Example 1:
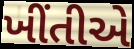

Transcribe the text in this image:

ખીંતીએ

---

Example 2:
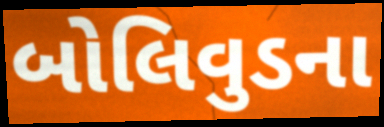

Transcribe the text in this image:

બોલિવુડના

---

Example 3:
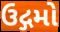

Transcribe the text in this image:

ઉદ્ગમો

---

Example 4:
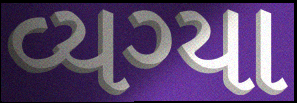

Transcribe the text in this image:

વ્યગ્યા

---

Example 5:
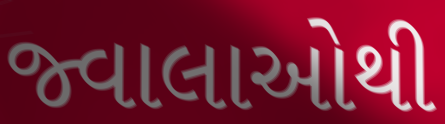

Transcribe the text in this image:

જ્વાલાઓથી